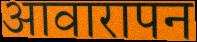
आवारापन